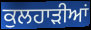
ਕੁਲਹਾੜੀਆਂ